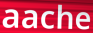
aache